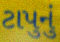
ટાપુનું